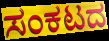
ಸಂಕಟದ